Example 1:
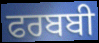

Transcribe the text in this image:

ਫਰਬਬੀ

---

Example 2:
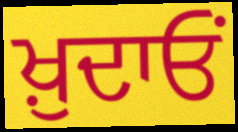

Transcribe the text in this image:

ਖ਼ੁਦਾਓਂ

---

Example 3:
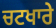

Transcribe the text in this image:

ਚਟਖਾਰੇ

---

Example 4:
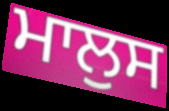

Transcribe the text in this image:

ਮਾਲੁਸ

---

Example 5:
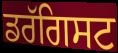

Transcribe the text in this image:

ਡਰੱਗਿਸਟ